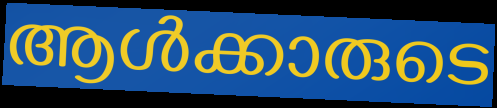
ആൾക്കാരുടെ